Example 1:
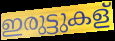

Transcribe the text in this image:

ഇരുട്ടുകള്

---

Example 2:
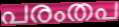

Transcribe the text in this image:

പരംതപ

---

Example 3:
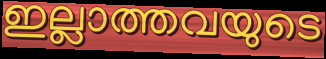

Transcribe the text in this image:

ഇല്ലാത്തവയുടെ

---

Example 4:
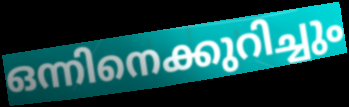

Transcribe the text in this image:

ഒന്നിനെക്കുറിച്ചും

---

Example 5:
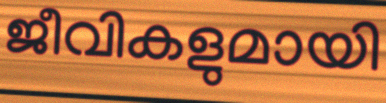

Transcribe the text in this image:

ജീവികളുമായി